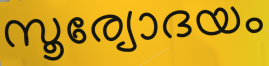
സൂര്യോദയം